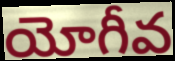
యోగీవ